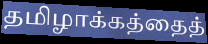
தமிழாக்கத்தைத்